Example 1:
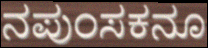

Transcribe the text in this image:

ನಪುಂಸಕನೂ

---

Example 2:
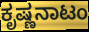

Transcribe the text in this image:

ಕೃಷ್ಣನಾಟಂ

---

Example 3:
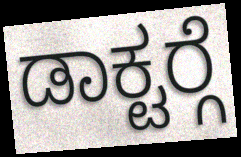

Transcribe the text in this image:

ಡಾಕ್ಟರ್‍ಗೆ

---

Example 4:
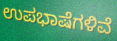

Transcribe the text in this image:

ಉಪಭಾಷೆಗಳಿವೆ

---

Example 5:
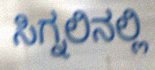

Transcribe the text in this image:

ಸಿಗ್ನಲಿನಲ್ಲಿ